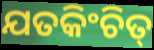
ଯତକିଂଚିତ୍